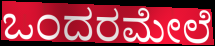
ಒಂದರಮೇಲೆ